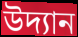
উদ্যান